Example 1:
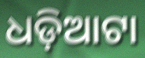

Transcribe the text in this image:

ଧଡ଼ିଆଟା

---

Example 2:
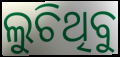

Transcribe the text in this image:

ଲୁଚିଥିବୁ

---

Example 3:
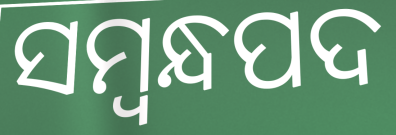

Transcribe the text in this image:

ସମ୍ବନ୍ଧପଦ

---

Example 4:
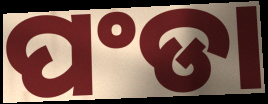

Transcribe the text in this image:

ପଂଡା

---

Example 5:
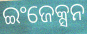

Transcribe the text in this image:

ଇଂଜେକ୍ସନ